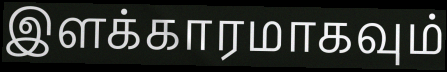
இளக்காரமாகவும்